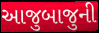
આજુબાજુની